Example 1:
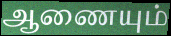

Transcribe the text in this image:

ஆணையும்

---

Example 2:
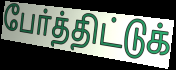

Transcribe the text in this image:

பேர்த்திட்டுக்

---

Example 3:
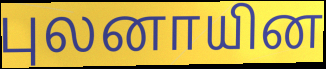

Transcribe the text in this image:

புலனாயின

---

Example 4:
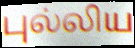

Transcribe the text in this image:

புல்லிய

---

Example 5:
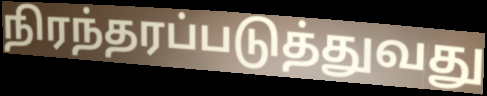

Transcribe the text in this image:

நிரந்தரப்படுத்துவது